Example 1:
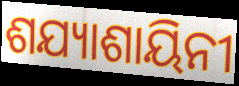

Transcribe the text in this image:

ଶଯ୍ୟାଶାୟିନୀ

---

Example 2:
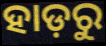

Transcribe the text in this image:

ହାଡ଼ରୁ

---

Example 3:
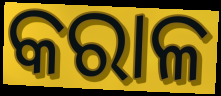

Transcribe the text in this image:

କରାଳ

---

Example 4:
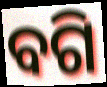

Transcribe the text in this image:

ବଗି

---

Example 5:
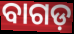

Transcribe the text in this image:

ବାଗଡ଼